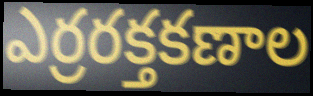
ఎర్రరక్తకణాల